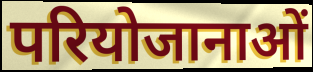
परियोजानाओं